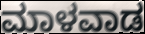
ಮಾಳವಾಡ